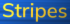
Stripes